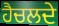
ਹੈਚਲਦੇ